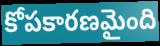
కోపకారణమైంది